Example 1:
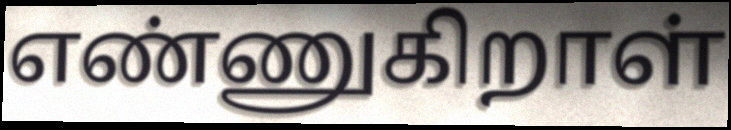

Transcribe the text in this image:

எண்ணுகிறாள்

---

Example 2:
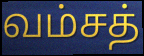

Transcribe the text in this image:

வம்சத்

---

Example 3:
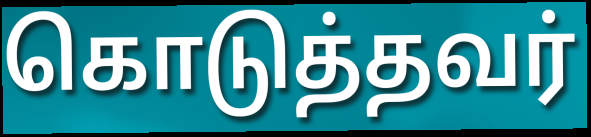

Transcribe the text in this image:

கொடுத்தவர்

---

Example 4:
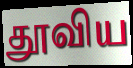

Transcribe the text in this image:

தூவிய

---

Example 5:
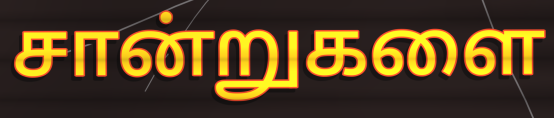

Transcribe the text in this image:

சான்றுகளை